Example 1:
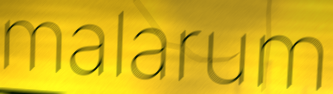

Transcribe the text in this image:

malarum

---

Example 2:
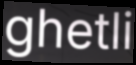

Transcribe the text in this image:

ghetli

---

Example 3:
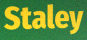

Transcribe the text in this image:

Staley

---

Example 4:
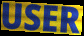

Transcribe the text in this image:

USER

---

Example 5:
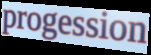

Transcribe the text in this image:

progession